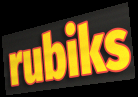
rubiks